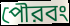
পৌরবং